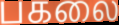
பகலை